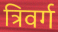
त्रिवर्ग